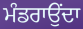
ਮੰਡਰਾਉਂਦਾ